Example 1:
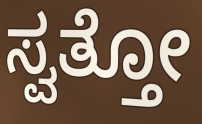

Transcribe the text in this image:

ಸ್ವತ್ತೋ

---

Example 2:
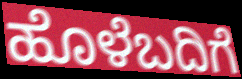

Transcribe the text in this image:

ಹೊಳೆಬದಿಗೆ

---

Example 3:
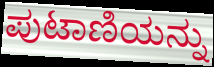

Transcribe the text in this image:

ಪುಟಾಣಿಯನ್ನು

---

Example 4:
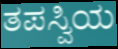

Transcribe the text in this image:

ತಪಸ್ವಿಯ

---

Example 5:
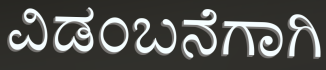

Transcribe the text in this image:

ವಿಡಂಬನೆಗಾಗಿ